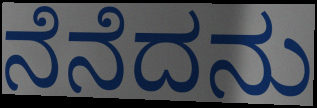
ನೆನೆದನು